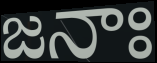
జనాః